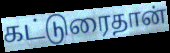
கட்டுரைதான்